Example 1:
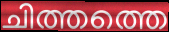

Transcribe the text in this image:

ചിത്തത്തെ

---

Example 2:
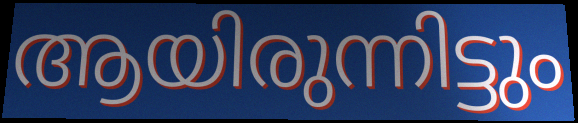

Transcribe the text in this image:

ആയിരുന്നിട്ടും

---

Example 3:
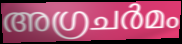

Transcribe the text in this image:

അഗ്രചർമം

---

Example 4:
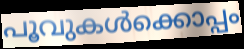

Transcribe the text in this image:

പൂവുകൾക്കൊപ്പം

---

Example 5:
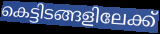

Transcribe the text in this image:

കെട്ടിടങ്ങളിലേക്ക്